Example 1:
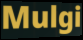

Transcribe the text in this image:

Mulgi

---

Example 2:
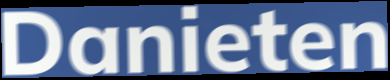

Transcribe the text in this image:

Danieten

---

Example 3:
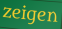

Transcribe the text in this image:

zeigen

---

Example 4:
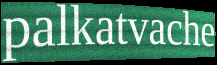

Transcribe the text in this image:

palkatvache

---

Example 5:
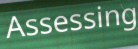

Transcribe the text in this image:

Assessing